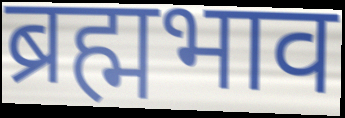
ब्रह्मभाव